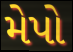
મેપો